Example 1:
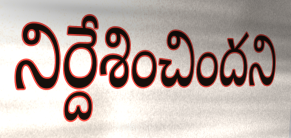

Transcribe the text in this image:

నిర్దేశించిందని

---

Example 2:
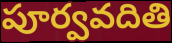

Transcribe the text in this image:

పూర్వవదితి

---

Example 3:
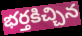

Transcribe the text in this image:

భర్తకిచ్చిన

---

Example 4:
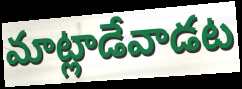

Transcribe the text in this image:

మాట్లాడేవాడట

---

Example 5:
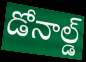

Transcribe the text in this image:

డోనాల్డ్